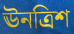
ঊনত্রিশ